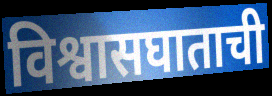
विश्वासघाताची